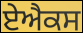
ਏਐਕਸ